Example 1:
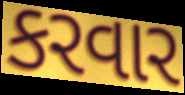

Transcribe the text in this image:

કરવાર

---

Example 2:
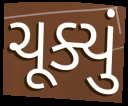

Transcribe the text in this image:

ચૂક્યું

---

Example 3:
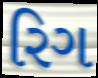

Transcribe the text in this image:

રિગ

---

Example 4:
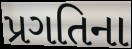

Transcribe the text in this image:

પ્રગતિના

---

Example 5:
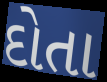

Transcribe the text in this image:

દોતા